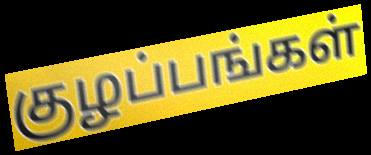
குழப்பங்கள்